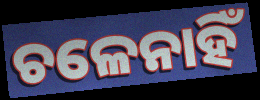
ଚଳେନାହିଁ